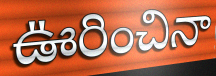
ఊరించినా